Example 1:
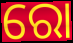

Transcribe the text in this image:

ରୋ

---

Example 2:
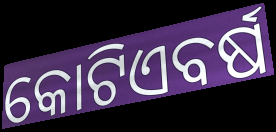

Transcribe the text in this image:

କୋଟିଏବର୍ଷ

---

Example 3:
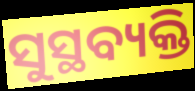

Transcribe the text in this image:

ସୁସ୍ଥବ୍ୟକ୍ତି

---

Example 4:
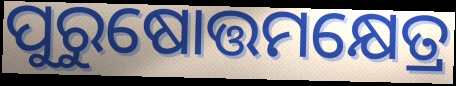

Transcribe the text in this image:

ପୁରୁଷୋତ୍ତମକ୍ଷେତ୍ର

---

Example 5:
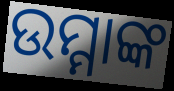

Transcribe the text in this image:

ଉମ୍ମାଙ୍କ